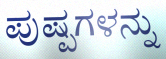
ಪುಷ್ಪಗಳನ್ನು